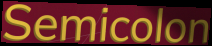
Semicolon